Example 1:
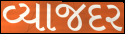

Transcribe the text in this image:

વ્યાજદર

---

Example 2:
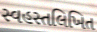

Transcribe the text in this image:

સ્વહસ્તલિખિત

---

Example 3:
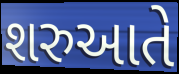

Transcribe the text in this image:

શરુઆતે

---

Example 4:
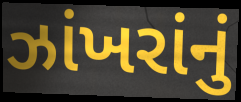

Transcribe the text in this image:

ઝાંખરાંનું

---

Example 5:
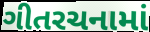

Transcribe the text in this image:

ગીતરચનામાં